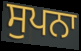
ਸੁਪਨਾ